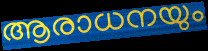
ആരാധനയും